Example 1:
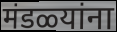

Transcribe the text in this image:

मंडळ्यांना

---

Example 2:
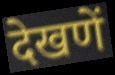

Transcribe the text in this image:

देखणें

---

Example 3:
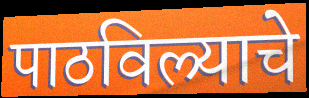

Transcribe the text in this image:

पाठविल्याचे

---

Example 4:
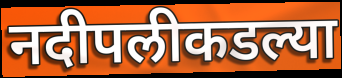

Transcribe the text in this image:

नदीपलीकडल्या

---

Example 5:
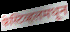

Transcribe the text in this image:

फेस्टिव्हलमधून